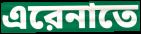
এরেনাতে